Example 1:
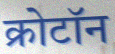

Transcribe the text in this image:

क्रोटॉन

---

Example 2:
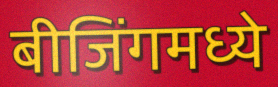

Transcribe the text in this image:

बीजिंगमध्ये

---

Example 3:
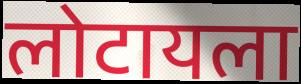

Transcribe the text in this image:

लोटायला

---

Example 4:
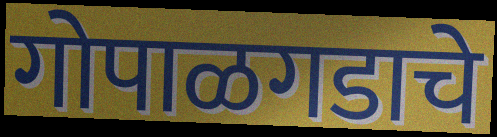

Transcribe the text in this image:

गोपाळगडाचे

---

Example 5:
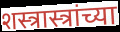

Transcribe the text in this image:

शस्त्रास्त्रांच्या